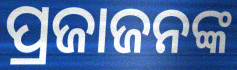
ପ୍ରଜାଜନଙ୍କ